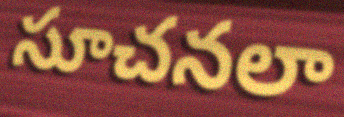
సూచనలా